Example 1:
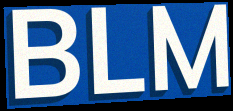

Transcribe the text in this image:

BLM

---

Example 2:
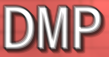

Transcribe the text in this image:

DMP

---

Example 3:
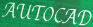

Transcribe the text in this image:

AUTOCAD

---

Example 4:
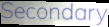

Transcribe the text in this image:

Secondary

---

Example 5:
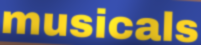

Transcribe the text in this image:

musicals